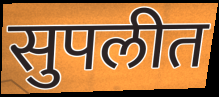
सुपलीत